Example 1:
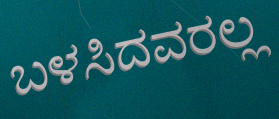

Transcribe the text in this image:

ಬಳಸಿದವರಲ್ಲ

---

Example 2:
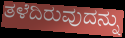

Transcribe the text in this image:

ತಳೆದಿರುವುದನ್ನು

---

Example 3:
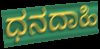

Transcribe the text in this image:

ಧನದಾಹಿ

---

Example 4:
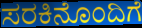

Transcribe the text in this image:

ಸರಕಿನೊಂದಿಗೆ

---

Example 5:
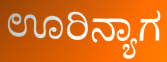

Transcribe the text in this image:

ಊರಿನ್ಯಾಗ